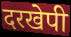
दरखेपी